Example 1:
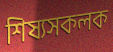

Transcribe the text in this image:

শিষ্যসকলক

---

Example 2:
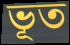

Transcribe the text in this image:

ভূত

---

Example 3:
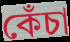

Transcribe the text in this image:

কেঁচা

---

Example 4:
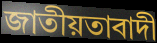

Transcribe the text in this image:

জাতীয়তাবাদী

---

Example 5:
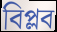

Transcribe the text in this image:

বিপ্লব